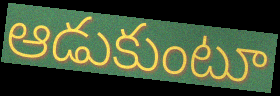
ఆడుకుంటూ